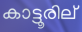
കാട്ടൂരില്